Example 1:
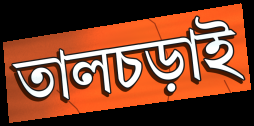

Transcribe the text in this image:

তালচড়াই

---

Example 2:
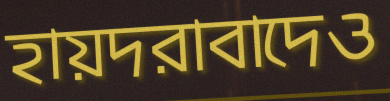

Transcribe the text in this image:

হায়দরাবাদেও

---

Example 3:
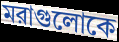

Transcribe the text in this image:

মরাগুলোকে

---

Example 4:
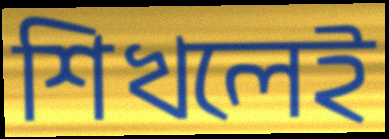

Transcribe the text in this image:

শিখলেই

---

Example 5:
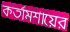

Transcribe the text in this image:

কর্তামশায়ের